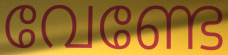
വേണ്ടേ